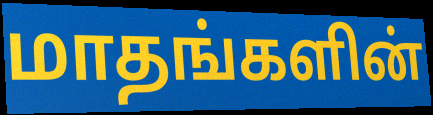
மாதங்களின்